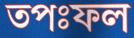
তপঃফল